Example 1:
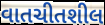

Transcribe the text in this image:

વાતચીતશીલ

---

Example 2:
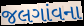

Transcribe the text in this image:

જલગાંવના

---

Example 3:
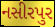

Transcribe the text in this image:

નસીરપુર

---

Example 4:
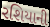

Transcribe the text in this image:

રશિયાની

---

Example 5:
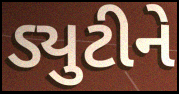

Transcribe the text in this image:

ડ્યુટીને